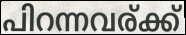
പിറന്നവര്ക്ക്